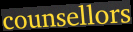
counsellors